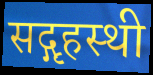
सद्गृहस्थी